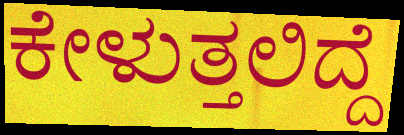
ಕೇಳುತ್ತಲಿದ್ದೆ